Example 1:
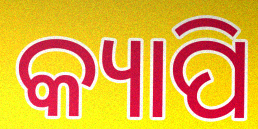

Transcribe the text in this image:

କ୍ୟାପି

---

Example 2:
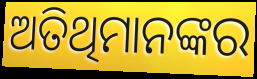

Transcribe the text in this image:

ଅତିଥିମାନଙ୍କର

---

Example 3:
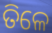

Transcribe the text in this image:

ତିଳେ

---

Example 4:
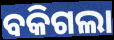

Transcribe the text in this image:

ବକିଗଲା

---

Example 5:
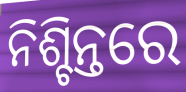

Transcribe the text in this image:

ନିଶ୍ଚିନ୍ତରେ